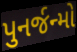
પુનર્જન્મો